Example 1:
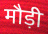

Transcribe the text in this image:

मौड़ी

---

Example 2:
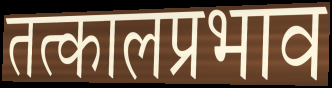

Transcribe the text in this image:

तत्कालप्रभाव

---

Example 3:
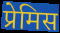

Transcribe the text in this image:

प्रेमिस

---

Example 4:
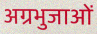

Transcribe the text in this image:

अग्रभुजाओं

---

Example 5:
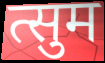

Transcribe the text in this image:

त्सुम